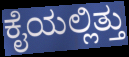
ಕೈಯಲ್ಲಿತ್ತು